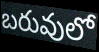
బరువులో